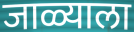
जाळ्याला